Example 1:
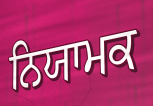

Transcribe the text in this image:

ਨਿਯਾਮਕ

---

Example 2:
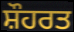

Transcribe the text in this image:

ਸ਼ੌਹਰਤ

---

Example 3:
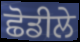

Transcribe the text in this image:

ਛੋਡੀਲੇ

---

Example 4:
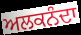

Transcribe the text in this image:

ਅਲਕਨੰਦਾ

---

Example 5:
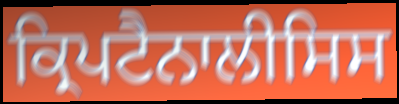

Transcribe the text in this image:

ਕ੍ਰਿਪਟੈਨਾਲੀਸਿਸ